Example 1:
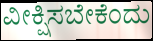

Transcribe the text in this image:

ವೀಕ್ಷಿಸಬೇಕೆಂದು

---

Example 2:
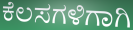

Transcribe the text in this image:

ಕೆಲಸಗಳಿಗಾಗಿ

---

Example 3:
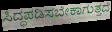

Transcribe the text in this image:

ಸಿದ್ಧಪಡಿಸಬೇಕಾಗುತ್ತದೆ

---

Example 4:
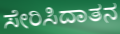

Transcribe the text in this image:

ಸೇರಿಸಿದಾತನ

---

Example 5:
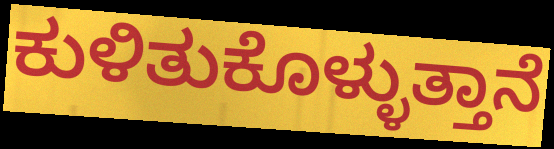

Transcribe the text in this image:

ಕುಳಿತುಕೊಳ್ಳುತ್ತಾನೆ